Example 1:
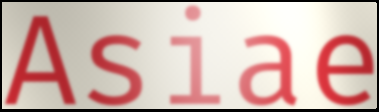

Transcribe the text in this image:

Asiae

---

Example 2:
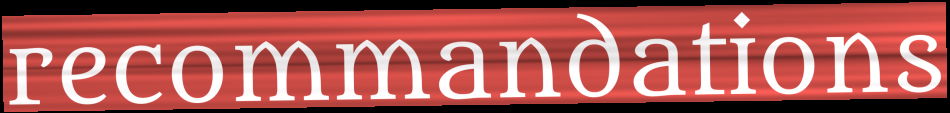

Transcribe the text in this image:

recommandations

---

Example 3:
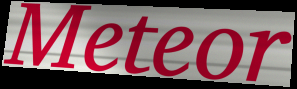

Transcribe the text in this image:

Meteor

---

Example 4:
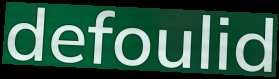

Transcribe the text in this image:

defoulid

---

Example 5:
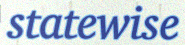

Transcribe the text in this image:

statewise